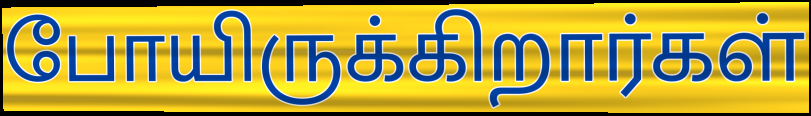
போயிருக்கிறார்கள்